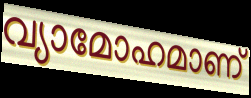
വ്യാമോഹമാണ്